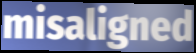
misaligned